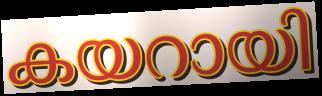
കയറായി